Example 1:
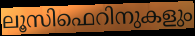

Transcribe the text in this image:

ലൂസിഫെറിനുകളും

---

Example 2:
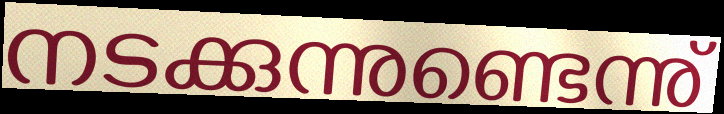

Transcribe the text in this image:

നടക്കുന്നുണ്ടെന്നു്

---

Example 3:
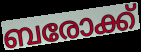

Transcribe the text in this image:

ബരോക്ക്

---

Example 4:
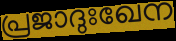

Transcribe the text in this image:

പ്രജാദുഃഖേന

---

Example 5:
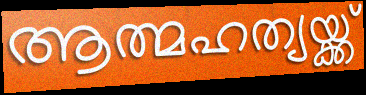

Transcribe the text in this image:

ആത്മഹത്യയ്ക്ക്